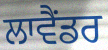
ਲਾਵੈਂਡਰ